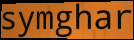
symghar